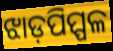
ଝାଡ଼ପିପ୍ପଳ